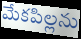
మేకపిల్లను